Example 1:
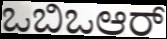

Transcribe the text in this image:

ಒಬಿಒಆರ್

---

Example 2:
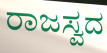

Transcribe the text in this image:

ರಾಜಸ್ವದ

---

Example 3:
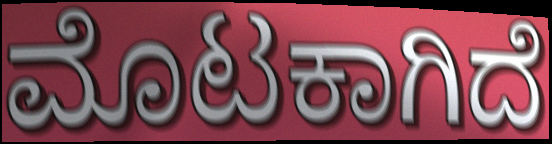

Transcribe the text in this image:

ಮೊಟಕಾಗಿದೆ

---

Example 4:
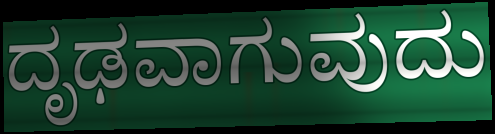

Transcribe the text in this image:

ದೃಢವಾಗುವುದು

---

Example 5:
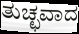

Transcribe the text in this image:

ತುಚ್ಛವಾದ